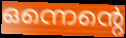
ഒന്നെന്റെ